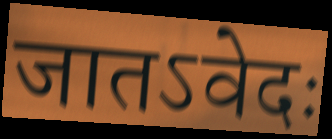
जातऽवेदः